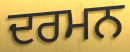
ਦਰਮਨ